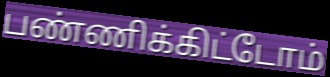
பண்ணிக்கிட்டோம்